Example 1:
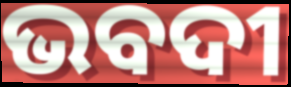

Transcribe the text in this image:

ଭବଦୀ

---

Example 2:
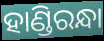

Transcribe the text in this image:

ହାଣ୍ଡିରନ୍ଧା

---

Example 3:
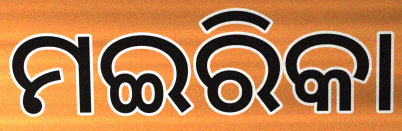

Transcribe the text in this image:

ମଇରିକା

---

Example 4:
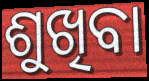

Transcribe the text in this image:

ଶୁଖିବା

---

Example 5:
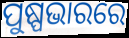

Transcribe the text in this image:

ପୁଷ୍ପଭାରରେ